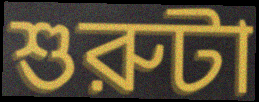
শুরুটা